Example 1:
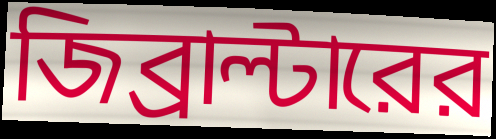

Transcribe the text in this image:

জিব্রাল্টারের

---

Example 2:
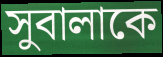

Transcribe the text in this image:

সুবালাকে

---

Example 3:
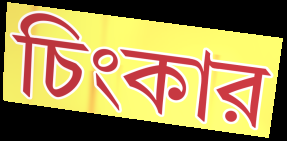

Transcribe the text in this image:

চিংকার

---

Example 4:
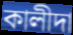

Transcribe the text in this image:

কালীদা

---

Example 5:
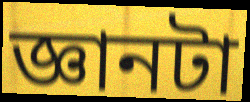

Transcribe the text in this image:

জ্ঞানটা